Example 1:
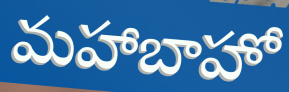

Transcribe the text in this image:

మహాబాహో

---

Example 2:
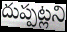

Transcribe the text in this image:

దుప్పట్లని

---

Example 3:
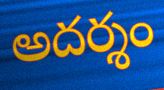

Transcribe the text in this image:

అదర్శం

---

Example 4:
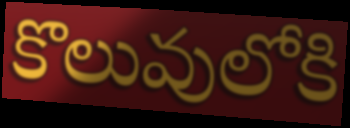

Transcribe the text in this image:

కొలువులోకి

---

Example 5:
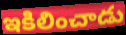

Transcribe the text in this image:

ఇకిలించాడు